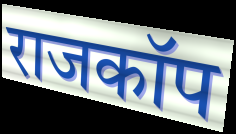
राजकॉप